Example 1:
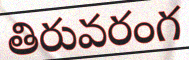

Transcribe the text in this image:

తిరువరంగ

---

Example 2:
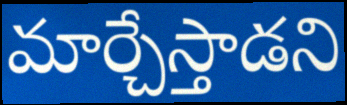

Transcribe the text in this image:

మార్చేస్తాడని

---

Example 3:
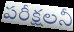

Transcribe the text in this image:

పరీక్షలనీ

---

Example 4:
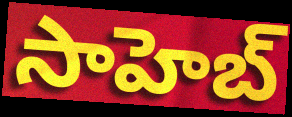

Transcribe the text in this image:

సాహెబ్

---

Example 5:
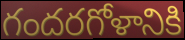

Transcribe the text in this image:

గందరగోళానికి